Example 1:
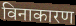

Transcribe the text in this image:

विनाकारण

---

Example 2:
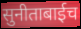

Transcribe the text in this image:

सुनीताबाईच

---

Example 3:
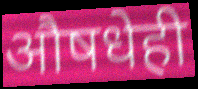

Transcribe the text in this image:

औषधेही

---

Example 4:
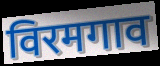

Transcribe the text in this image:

विरमगाव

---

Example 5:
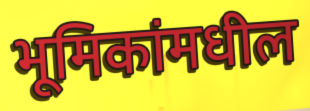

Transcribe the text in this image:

भूमिकांमधील